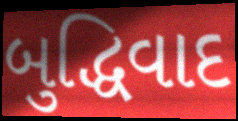
બુદ્ધિવાદ